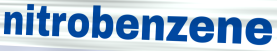
nitrobenzene